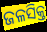
ଜଳସିକ୍ତ